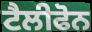
ਟੈਲੀਫੋਨ